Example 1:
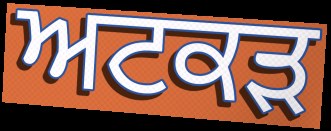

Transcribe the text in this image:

ਅਟਕੜ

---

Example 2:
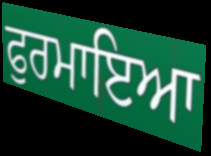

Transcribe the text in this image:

ਫੁਰਮਾਇਆ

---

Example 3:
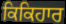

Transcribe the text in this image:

ਕਿਕਿਹਾਰ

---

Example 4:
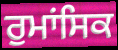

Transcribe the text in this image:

ਰੁਮਾਂਸਿਕ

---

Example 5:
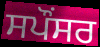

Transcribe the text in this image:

ਸਪੌਂਸਰ